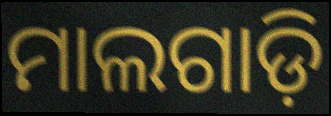
ମାଲଗାଡ଼ି